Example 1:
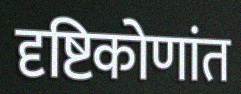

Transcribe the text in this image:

दृष्टिकोणांत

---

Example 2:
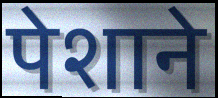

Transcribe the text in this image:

पेशाने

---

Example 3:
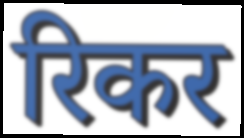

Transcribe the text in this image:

रिकर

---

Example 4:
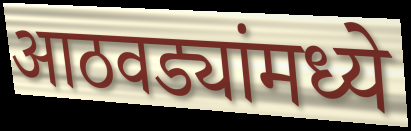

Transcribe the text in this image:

आठवड्यांमध्ये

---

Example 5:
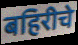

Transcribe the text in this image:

बहिरीचे